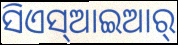
ସିଏସ୍ଆଇଆର୍